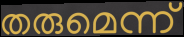
തരുമെന്ന്